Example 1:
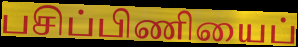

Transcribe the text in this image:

பசிப்பிணியைப்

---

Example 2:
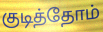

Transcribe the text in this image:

குடித்தோம்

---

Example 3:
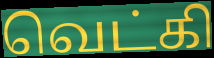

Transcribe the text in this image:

வெட்கி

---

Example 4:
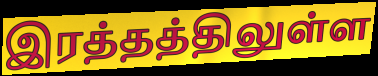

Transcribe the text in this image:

இரத்தத்திலுள்ள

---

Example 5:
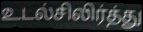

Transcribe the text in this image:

உடல்சிலிர்த்து